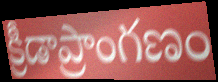
క్రీడాప్రాంగణం